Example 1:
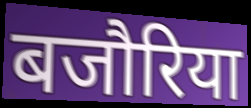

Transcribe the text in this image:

बजौरिया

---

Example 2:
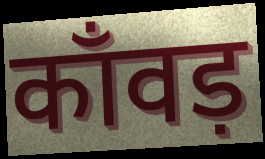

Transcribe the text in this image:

काँवड़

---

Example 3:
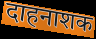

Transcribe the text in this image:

दाहनाशक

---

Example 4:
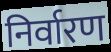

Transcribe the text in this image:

निर्वारण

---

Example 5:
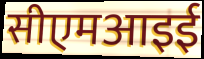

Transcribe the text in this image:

सीएमआइई